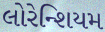
લોરેન્શિયમ